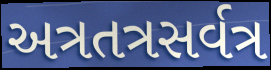
અત્રતત્રસર્વત્ર